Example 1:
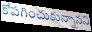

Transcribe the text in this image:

కోపగించుకున్నానని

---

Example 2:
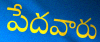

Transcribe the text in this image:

పేదవారు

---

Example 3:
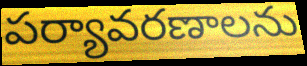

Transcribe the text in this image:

పర్యావరణాలను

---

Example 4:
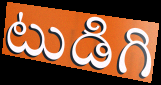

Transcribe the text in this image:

టుడిగి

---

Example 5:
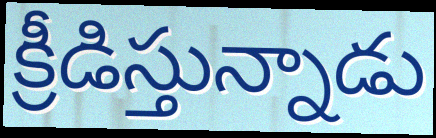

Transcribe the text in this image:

క్రీడిస్తున్నాడు